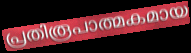
പ്രതിരൂപാത്മകമായ